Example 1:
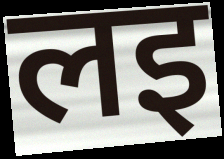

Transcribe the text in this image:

लइ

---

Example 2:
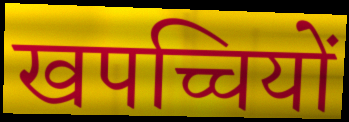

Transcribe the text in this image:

खपच्चियों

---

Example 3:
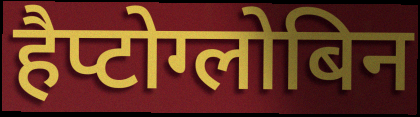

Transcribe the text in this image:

हैप्टोग्लोबिन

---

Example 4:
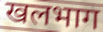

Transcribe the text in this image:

खलभाग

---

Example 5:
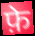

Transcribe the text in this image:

फ़े